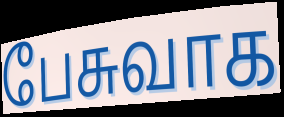
பேசுவாக